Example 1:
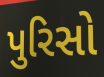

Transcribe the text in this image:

પુરિસો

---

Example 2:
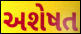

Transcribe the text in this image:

અશેષત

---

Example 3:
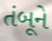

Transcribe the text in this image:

તંબૂને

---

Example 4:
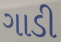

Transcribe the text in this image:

ગાડી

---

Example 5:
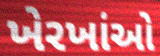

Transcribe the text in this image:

ખેરખાંઓ